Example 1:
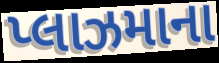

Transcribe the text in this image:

પ્લાઝમાના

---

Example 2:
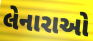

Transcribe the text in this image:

લેનારાઓ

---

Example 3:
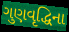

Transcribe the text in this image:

ગુણવૃદ્ધિના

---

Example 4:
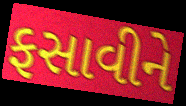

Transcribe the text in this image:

ફસાવીને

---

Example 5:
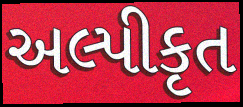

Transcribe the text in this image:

અલ્પીકૃત